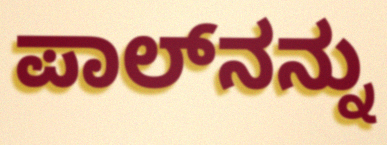
ಪಾಲ್‍ನನ್ನು